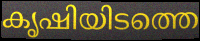
കൃഷിയിടത്തെ